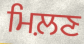
ਮਿਲ਼ਣ